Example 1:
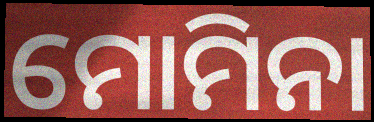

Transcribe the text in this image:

ମୋମିନା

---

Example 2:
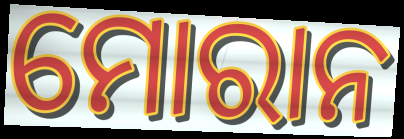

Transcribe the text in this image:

ମୋରାନ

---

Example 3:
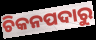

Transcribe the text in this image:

ଚିକନପଦାରୁ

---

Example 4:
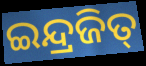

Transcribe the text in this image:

ଇନ୍ଦ୍ରଜିତ୍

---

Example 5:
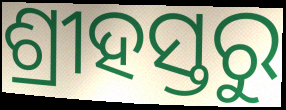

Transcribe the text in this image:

ଶ୍ରୀହସ୍ତରୁ